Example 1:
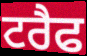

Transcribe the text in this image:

ਟਰੈਫ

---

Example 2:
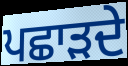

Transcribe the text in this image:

ਪਛਾੜਦੇ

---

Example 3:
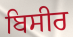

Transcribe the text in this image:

ਬਿਸੀਰ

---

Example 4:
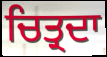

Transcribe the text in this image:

ਚਿਤ੍ਰਦਾ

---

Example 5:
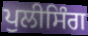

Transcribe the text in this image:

ਪੁਲੀਸਿੰਗ